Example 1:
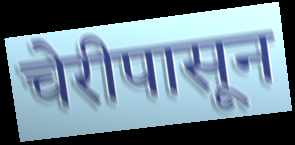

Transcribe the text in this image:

चेरीपासून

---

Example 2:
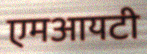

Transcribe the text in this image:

एमआयटी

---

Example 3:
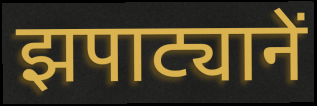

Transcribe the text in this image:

झपाट्यानें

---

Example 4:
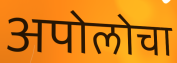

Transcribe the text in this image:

अपोलोचा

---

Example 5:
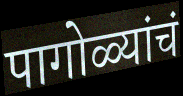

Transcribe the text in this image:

पागोळ्यांचं